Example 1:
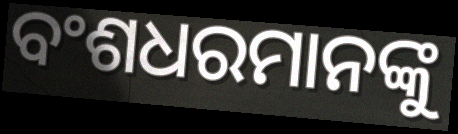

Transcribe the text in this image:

ବଂଶଧରମାନଙ୍କୁ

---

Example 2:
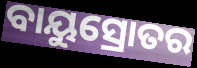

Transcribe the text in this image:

ବାୟୁସ୍ରୋତର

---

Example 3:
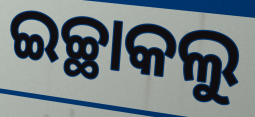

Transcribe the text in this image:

ଇଚ୍ଛାକଲୁ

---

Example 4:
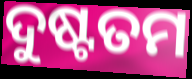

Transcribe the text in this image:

ଦୁଷ୍ଟତମ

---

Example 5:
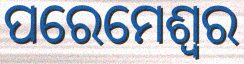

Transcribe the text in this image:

ପରେମେଶ୍ଵର